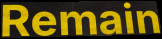
Remain